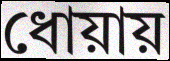
ধোয়ায়